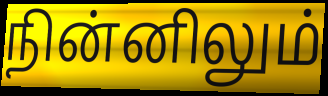
நின்னிலும்